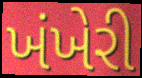
ખંખેરી